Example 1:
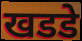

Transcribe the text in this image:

खडडे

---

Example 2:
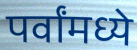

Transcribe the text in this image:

पर्वांमध्ये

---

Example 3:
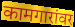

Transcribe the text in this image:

कामगारांवर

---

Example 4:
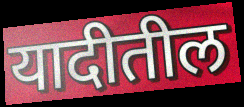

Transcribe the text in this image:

यादीतील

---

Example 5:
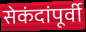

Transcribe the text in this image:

सेकंदांपूर्वी